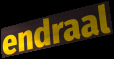
endraal